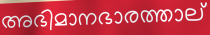
അഭിമാനഭാരത്താല്